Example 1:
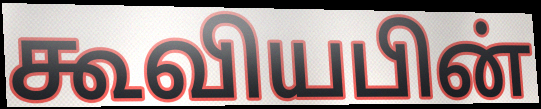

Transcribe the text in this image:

கூவியபின்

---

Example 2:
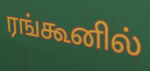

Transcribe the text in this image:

ரங்கூனில்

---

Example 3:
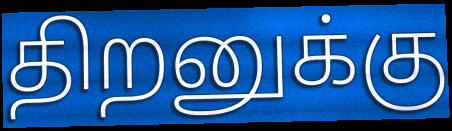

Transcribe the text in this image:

திறனுக்கு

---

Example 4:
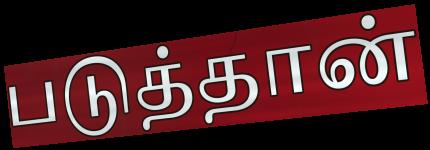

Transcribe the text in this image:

படுத்தான்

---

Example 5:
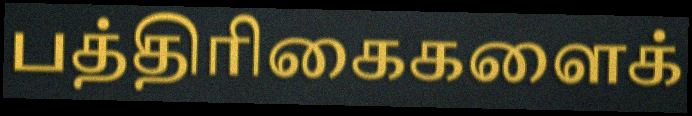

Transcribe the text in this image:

பத்திரிகைகளைக்